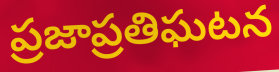
ప్రజాప్రతిఘటన